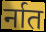
र्नात